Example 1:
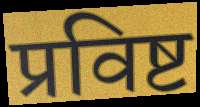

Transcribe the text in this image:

प्रविष्ट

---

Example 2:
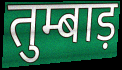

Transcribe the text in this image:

तुम्बाड़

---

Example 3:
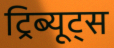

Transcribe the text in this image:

ट्रिब्यूट्स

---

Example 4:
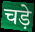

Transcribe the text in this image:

चड़े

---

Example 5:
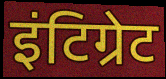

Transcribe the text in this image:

इंटिग्रेट